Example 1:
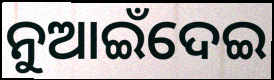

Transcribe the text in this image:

ନୁଆଇଁଦେଇ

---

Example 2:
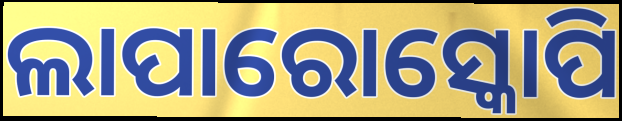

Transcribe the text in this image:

ଲାପାରୋସ୍କୋପି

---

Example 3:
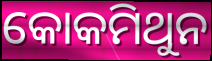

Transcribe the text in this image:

କୋକମିଥୁନ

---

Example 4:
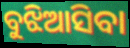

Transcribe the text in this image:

ବୁଝିଆସିବା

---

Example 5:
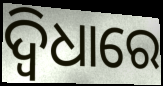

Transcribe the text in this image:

ଦ୍ୱିଧାରେ